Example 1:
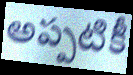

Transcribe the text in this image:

అప్పటికీ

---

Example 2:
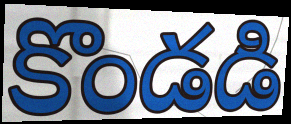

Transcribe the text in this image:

కొండడి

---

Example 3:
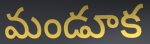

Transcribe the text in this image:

మండూక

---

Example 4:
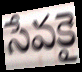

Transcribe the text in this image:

సేవకై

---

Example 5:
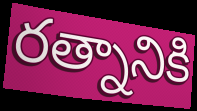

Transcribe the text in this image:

రత్నానికి